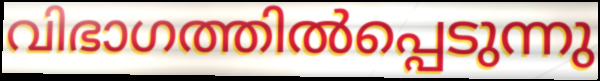
വിഭാഗത്തിൽപ്പെടുന്നു